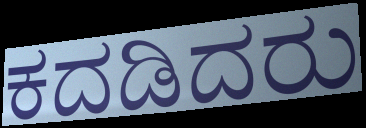
ಕದಡಿದರು